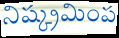
నిష్క్రమింప